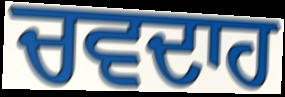
ਚਵਦਾਹ